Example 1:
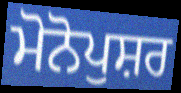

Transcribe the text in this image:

ਮੋਨੋਪੁਸ਼ਰ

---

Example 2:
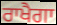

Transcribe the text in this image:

ਰਾਖੈਗਾ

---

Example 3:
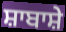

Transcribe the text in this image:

ਸ਼ਾਬਾਸ਼ੇ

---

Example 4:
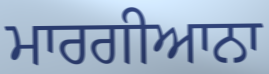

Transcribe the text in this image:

ਮਾਰਗੀਆਨਾ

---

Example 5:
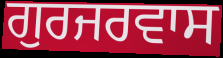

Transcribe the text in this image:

ਗੁਰਜਰਵਾਸ